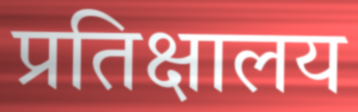
प्रतिक्षालय